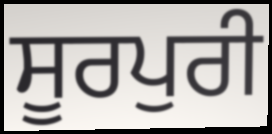
ਸੂਰਪੁਰੀ